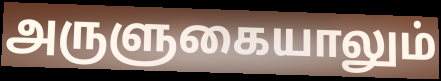
அருளுகையாலும்